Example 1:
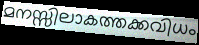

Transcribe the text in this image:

മനസ്സിലാകത്തക്കവിധം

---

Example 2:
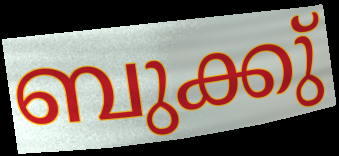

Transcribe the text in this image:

ബുക്കു്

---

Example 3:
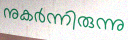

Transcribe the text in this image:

നുകർന്നിരുന്നു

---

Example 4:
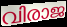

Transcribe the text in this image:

വിരാജ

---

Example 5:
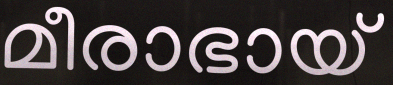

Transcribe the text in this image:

മീരാഭായ്